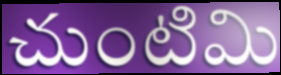
చుంటిమి